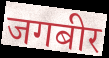
जगबीर